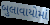
બુલાવાયોમાં